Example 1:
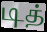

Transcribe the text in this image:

டித்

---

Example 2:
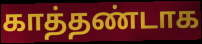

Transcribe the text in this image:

காத்தண்டாக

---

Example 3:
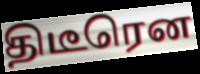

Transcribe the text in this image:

திடீரென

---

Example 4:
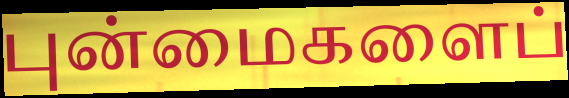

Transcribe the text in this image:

புன்மைகளைப்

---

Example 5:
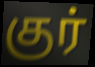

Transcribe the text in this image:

குர்